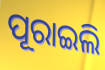
ପୂରାଇଲି